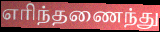
எரிந்தணைந்து